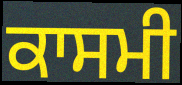
ਕਾਸਮੀ